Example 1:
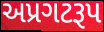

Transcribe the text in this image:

અપ્રગટરૂપ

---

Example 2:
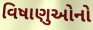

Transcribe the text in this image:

વિષાણુઓનો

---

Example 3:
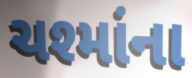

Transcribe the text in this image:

ચશ્માંના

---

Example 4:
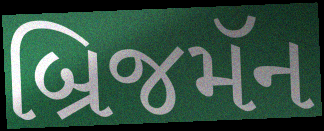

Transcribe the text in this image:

બ્રિજમૅન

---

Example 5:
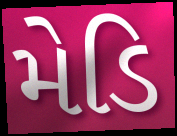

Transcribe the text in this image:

મેડિ